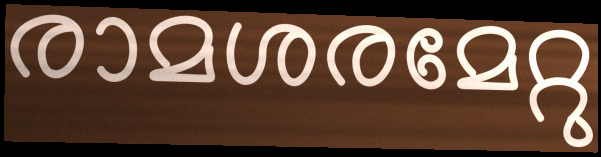
രാമശരമേറ്റു